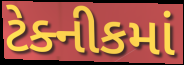
ટેક્નીકમાં